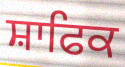
ਸ਼ਾਫਿਕ